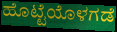
ಹೊಟ್ಟೆಯೊಳಗಡೆ